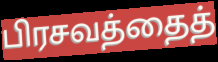
பிரசவத்தைத்